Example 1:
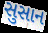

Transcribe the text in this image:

સુસાન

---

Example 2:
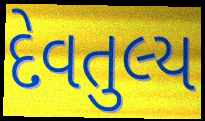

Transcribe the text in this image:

દેવતુલ્ય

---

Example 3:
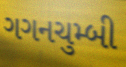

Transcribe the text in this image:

ગગનચુમ્બી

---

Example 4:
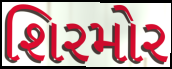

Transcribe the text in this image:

શિરમોર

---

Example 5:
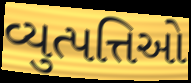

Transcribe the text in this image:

વ્યુત્પત્તિઓ